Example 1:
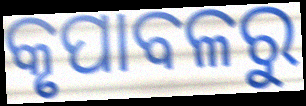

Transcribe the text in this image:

କୃପାବଳରୁ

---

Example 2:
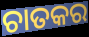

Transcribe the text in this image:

ଚାତକର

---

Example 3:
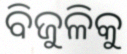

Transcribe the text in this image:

ବିଜୁଳିକୁ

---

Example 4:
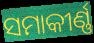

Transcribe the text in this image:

ସମାକୀର୍ଣ୍ଣ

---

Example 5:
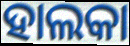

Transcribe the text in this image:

ହାଲକା